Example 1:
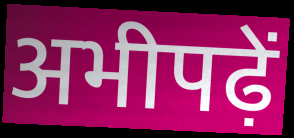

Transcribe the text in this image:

अभीपढ़ें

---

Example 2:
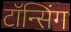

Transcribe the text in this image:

टॉन्सिंग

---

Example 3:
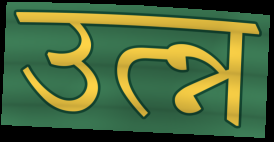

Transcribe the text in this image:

उत्न्न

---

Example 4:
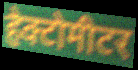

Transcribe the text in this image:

हेक्टोमीटर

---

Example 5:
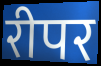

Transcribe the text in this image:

रीपर